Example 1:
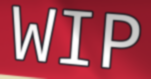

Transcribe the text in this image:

WIP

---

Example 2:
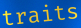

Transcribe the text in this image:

traits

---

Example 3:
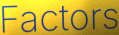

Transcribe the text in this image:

Factors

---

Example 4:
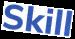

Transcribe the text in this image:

Skill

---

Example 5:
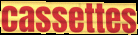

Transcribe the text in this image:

cassettes